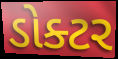
ડોક્ટર